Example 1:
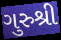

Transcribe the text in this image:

ગુરુશ્રી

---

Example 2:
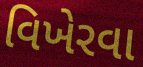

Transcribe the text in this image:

વિખેરવા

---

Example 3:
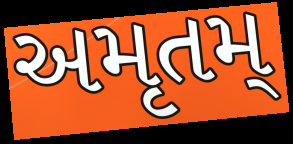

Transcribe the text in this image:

અમૃતમ્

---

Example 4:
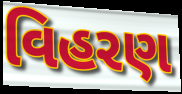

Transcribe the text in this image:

વિહરણ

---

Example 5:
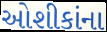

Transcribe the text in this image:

ઓશીકાંના